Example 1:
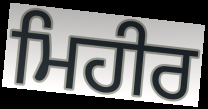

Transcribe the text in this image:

ਮਿਹੀਰ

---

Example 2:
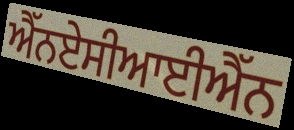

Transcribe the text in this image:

ਐੱਨਏਸੀਆਈਐੱਨ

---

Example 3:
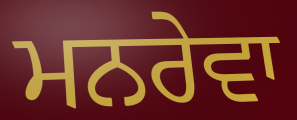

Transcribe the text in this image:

ਮਨਰੇਵਾ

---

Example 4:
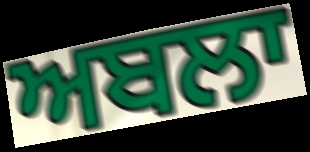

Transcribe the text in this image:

ਅਬਲਾ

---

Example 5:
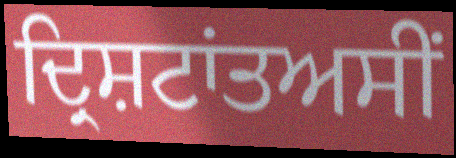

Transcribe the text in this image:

ਦ੍ਰਿਸ਼ਟਾਂਤਅਸੀਂ